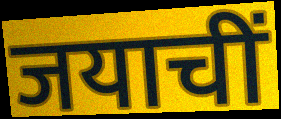
जयाचीं